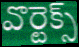
వొర్టెక్స్